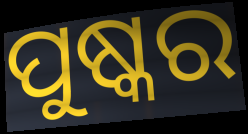
ପୁଷ୍କର